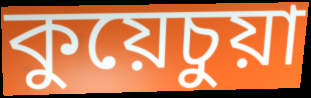
কুয়েচুয়া